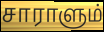
சாராளும்